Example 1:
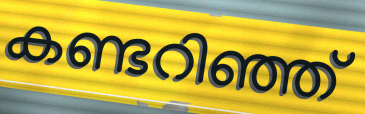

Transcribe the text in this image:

കണ്ടറിഞ്ഞ്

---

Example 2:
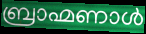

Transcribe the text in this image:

ബ്രാഹ്മണാൾ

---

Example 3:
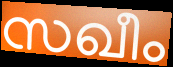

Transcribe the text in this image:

സഖീം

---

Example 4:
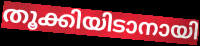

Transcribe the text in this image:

തൂക്കിയിടാനായി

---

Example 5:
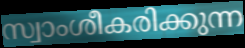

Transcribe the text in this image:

സ്വാംശീകരിക്കുന്ന